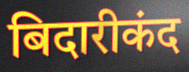
बिदारीकंद